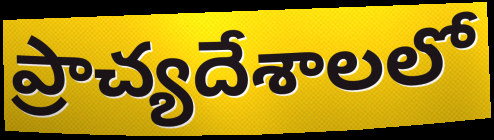
ప్రాచ్యదేశాలలో